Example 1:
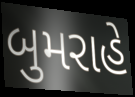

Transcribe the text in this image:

બુમરાહે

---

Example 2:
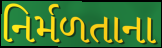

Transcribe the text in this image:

નિર્મળતાના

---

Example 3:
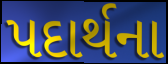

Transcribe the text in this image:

પદાર્થના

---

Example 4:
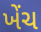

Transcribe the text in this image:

ખેંચ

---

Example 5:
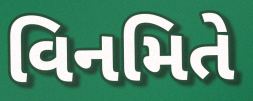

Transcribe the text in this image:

વિનમિતે